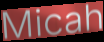
Micah